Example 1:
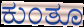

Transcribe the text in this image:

ಕುಂತೂ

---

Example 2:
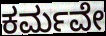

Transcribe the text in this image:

ಕರ್ಮವೇ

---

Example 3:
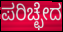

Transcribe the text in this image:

ಪರಿಚ್ಛೇದ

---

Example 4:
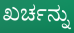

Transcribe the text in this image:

ಖರ್ಚನ್ನು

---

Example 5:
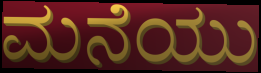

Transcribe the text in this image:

ಮನೆಯು